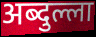
अब्दुल्ला